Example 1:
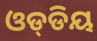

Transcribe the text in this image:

ଓଡ୍‌ଡିୟ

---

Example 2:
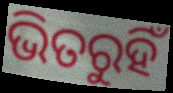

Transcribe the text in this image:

ଭିତରୁହିଁ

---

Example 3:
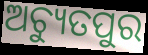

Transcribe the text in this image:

ଅଚ୍ୟୁତପୁର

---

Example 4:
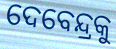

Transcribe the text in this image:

ଦେବେନ୍ଦ୍ରକୁ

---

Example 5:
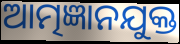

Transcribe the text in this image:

ଆତ୍ମଜ୍ଞାନଯୁକ୍ତ